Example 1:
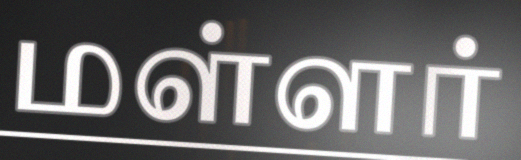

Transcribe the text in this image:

மள்ளர்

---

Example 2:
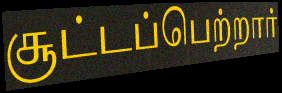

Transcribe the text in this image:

சூட்டப்பெற்றார்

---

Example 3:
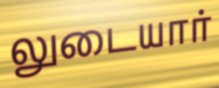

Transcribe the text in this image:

லுடையார்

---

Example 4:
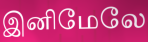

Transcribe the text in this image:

இனிமேலே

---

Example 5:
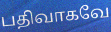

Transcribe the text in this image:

பதிவாகவே